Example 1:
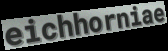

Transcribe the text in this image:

eichhorniae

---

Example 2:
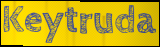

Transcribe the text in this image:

Keytruda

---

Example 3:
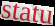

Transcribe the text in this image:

statu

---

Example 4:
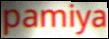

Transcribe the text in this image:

pamiya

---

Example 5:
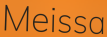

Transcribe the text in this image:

Meissa